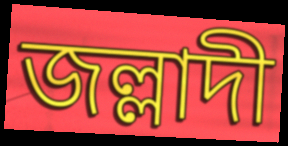
জল্লাদী